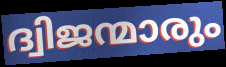
ദ്വിജന്മാരും